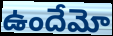
ఉందేమో